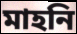
মাহনি